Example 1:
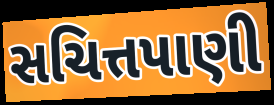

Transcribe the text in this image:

સચિત્તપાણી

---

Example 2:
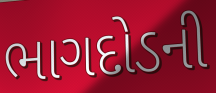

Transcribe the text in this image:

ભાગદોડની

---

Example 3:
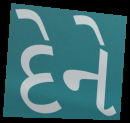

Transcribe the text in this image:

દેને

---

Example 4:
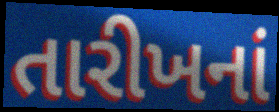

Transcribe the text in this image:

તારીખનાં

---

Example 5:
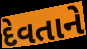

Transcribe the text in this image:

દેવતાને